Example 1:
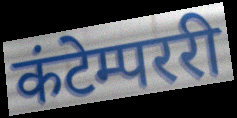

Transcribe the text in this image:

कंटेम्पररी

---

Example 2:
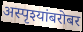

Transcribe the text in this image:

अस्पृश्यांबरोबर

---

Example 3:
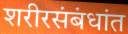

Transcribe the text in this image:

शरीरसंबंधांत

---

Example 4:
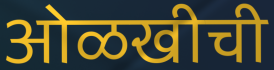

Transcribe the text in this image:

ओळखीची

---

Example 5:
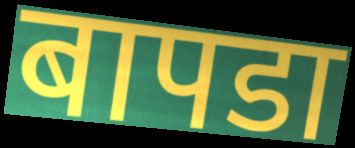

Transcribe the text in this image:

बापडा